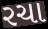
રચા